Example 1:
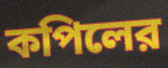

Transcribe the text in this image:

কপিলের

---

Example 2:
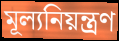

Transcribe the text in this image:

মূল্যনিয়ন্ত্রণ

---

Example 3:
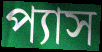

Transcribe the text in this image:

প্যাস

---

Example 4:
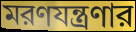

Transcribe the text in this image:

মরণযন্ত্রণার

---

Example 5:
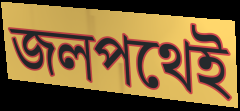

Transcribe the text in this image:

জলপথেই